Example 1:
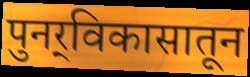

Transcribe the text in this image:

पुनर्विकासातून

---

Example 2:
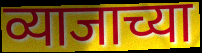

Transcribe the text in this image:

व्याजाच्या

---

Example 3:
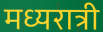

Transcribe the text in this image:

मध्यरात्री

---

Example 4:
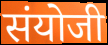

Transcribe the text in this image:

संयोजी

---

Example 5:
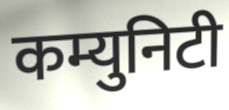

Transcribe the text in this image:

कम्युनिटी